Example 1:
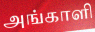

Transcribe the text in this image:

அங்காளி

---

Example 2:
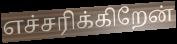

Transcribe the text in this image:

எச்சரிக்கிறேன்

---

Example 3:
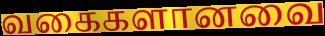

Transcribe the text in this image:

வகைகளானவை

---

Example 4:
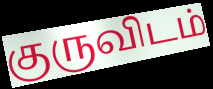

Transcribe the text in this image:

குருவிடம்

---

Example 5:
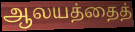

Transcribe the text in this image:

ஆலயத்தைத்